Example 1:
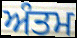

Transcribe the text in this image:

ਅੰਤਮ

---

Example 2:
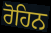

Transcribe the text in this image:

ਰੋਹਿਨ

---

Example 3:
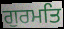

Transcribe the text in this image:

ਗੁਰਮਤਿ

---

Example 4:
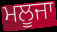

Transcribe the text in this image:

ਮਲੂਜਾ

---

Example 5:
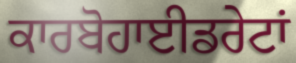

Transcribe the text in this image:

ਕਾਰਬੋਹਾਈਡਰੇਟਾਂ